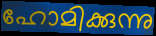
ഹോമിക്കുന്നു